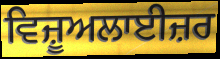
ਵਿਜ਼ੂਅਲਾਈਜ਼ਰ